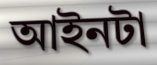
আইনটা